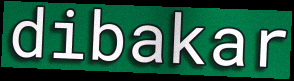
dibakar